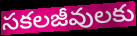
సకలజీవులకు